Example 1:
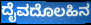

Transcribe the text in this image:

ದೈವದೊಲಹಿನ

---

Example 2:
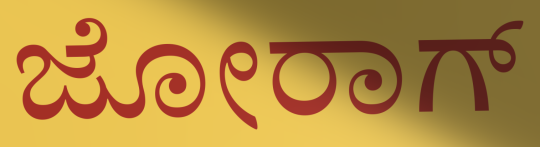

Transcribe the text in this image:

ಜೋರಾಗ್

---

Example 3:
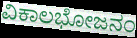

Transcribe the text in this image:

ವಿಕಾಲಭೋಜನಂ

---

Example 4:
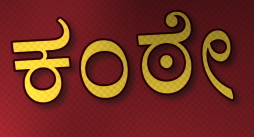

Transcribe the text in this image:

ಕಂಠೇ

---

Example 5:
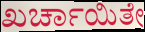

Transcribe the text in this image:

ಖರ್ಚಾಯಿತೇ